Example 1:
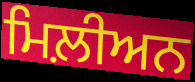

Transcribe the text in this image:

ਮਿਲ਼ੀਅਨ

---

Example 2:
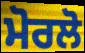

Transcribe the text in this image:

ਮੋਰਲੋ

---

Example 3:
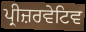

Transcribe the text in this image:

ਪ੍ਰੀਜ਼ਰਵੇਟਿਵ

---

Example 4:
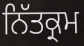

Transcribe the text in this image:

ਨਿੱਤਕ੍ਰਮ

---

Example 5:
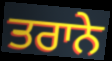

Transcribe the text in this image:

ਤਰਾਨੇ